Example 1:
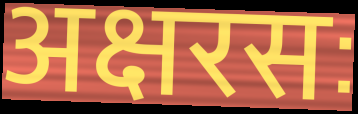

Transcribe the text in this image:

अक्षरसः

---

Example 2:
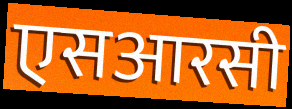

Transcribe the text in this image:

एसआरसी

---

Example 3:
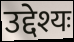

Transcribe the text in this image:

उद्देश्यः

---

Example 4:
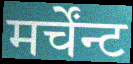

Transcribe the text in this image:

मर्चेंन्ट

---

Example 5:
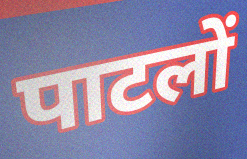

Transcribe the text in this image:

पाटलों